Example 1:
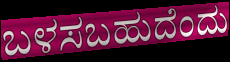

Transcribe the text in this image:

ಬಳಸಬಹುದೆಂದು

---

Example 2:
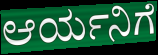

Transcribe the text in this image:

ಆರ್ಯನಿಗೆ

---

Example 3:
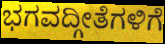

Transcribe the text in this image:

ಭಗವದ್ಗೀತೆಗಳಿಗೆ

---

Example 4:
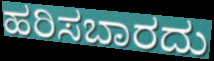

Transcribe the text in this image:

ಹರಿಸಬಾರದು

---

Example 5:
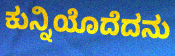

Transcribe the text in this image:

ಕುನ್ನಿಯೊದೆದನು